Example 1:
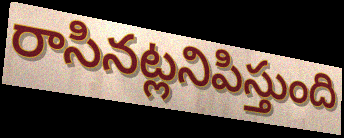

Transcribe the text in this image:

రాసినట్లనిపిస్తుంది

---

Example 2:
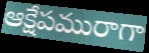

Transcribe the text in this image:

ఆక్షేపమురాగా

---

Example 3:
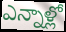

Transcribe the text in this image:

ఎన్నాళ్లో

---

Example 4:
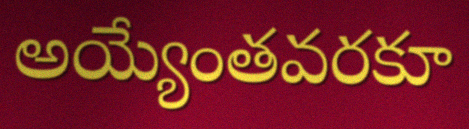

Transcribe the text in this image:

అయ్యేంతవరకూ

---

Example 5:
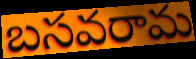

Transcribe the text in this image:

బసవరామ